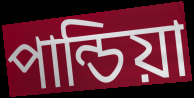
পান্ডিয়া